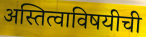
अस्तित्वाविषयीची